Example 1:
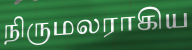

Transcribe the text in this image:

நிருமலராகிய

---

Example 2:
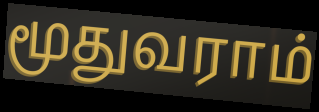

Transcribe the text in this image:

மூதுவராம்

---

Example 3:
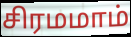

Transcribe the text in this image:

சிரமமாம்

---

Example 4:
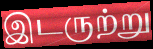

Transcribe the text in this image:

இடருற்று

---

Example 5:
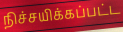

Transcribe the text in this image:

நிச்சயிக்கப்பட்ட